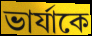
ভার্যাকে